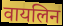
वायलिन